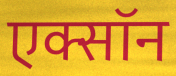
एक्सॉन